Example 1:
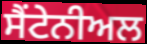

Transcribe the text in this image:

ਸੈਂਟੇਨੀਅਲ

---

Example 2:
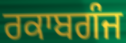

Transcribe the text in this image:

ਰਕਾਬਗੰਜ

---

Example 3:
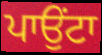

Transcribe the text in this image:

ਪਾਉਂਟਾ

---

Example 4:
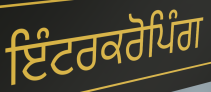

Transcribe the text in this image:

ਇੰਟਰਕਰੋਪਿੰਗ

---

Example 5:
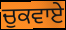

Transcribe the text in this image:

ਚੁਕਵਾਏ